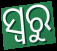
ସ୍ୱରୁ